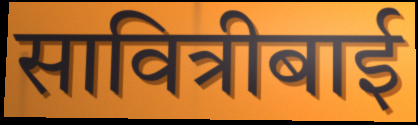
सावित्रीबाई